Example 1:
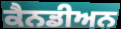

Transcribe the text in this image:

ਕੈਨਡੀਅਨ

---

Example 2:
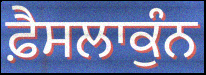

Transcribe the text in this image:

ਫ਼ੈਸਲਾਕੁੰਨ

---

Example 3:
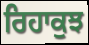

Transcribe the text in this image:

ਰਿਹਾਕੁਝ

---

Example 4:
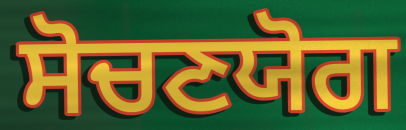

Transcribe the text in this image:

ਸੋਚਣਯੋਗ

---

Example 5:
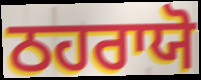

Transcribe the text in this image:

ਠਹਰਾਯੋ